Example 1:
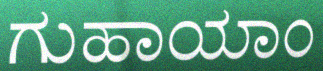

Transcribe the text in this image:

ಗುಹಾಯಾಂ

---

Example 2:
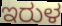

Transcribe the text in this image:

ಇರುಳ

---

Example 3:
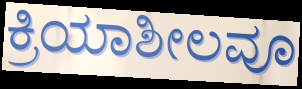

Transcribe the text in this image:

ಕ್ರಿಯಾಶೀಲವೂ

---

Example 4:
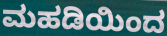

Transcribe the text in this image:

ಮಹಡಿಯಿಂದ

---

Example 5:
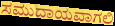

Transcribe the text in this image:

ಸಮುದಾಯವಾಗಲಿ